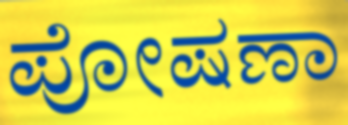
ಪೋಷಣಾ